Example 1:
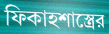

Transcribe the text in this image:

ফিকাহশাস্ত্রের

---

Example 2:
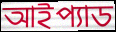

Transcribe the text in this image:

আইপ্যাড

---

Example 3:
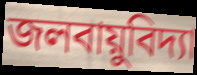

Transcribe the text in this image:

জলবায়ুবিদ্যা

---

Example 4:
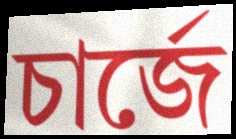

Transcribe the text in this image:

চার্জে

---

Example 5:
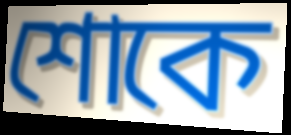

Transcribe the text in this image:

শোকে